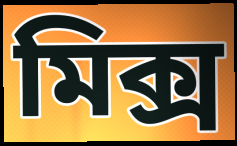
মিক্স